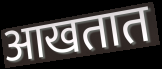
आखतात